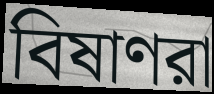
বিষাণরা